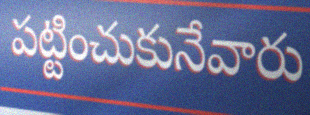
పట్టించుకునేవారు